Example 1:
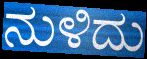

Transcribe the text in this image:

ನುಳಿದು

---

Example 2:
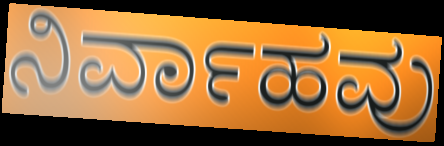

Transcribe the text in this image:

ನಿರ್ವಾಹವು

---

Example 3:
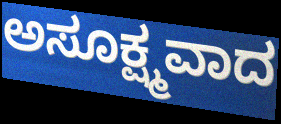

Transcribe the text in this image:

ಅಸೂಕ್ಷ್ಮವಾದ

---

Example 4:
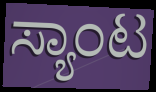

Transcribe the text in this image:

ಸ್ಯಾಂಟ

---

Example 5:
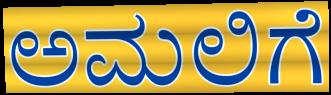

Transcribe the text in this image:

ಅಮಲಿಗೆ